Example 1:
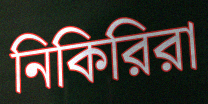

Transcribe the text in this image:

নিকিরিরা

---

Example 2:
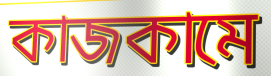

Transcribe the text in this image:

কাজকামে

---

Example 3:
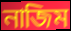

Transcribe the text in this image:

নাজিম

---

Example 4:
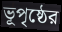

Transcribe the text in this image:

ভূপৃষ্ঠের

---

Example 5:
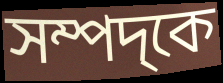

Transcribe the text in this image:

সম্পদ্‌কে